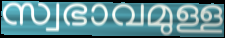
സ്വഭാവമുള്ള